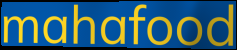
mahafood